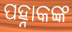
ପହ୍ନାକଙ୍କ